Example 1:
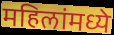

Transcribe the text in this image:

महिलांमध्ये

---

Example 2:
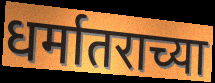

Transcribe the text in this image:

धर्मातराच्या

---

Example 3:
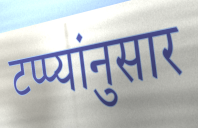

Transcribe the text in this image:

टप्प्यांनुसार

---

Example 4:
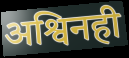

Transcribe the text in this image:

अश्विनही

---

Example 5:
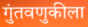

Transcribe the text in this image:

गुंतवणुकीला